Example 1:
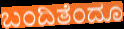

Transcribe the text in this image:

ಬಂದಿತೆಂದೂ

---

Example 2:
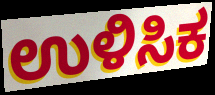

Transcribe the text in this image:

ಉಳಿಸಿಕ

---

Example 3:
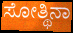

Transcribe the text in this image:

ಸೋತ್ಥಿನಾ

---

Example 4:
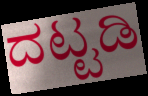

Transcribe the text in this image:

ದಟ್ಟಡಿ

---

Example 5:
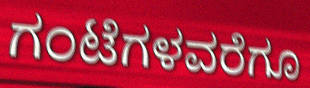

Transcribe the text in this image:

ಗಂಟೆಗಳವರೆಗೂ